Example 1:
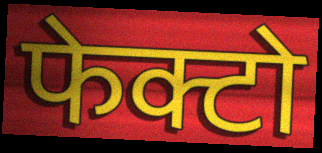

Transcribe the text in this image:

फेक्टो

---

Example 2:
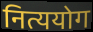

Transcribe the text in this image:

नित्ययोग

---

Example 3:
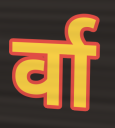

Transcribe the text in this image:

र्वा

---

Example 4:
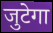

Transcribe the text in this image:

जुटेगा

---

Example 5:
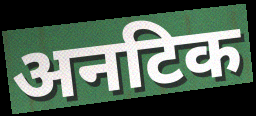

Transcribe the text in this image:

अनटिक